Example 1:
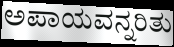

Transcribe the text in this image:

ಅಪಾಯವನ್ನರಿತು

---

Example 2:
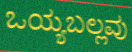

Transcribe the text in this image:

ಒಯ್ಯಬಲ್ಲವು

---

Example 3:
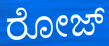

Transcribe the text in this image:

ರೋಜ್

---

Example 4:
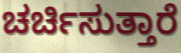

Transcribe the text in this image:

ಚರ್ಚಿಸುತ್ತಾರೆ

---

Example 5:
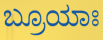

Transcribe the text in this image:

ಬ್ರೂಯಾಃ